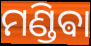
ମଣ୍ଡିଵା